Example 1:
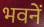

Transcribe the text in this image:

भवनें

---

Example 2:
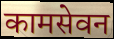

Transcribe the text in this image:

कामसेवन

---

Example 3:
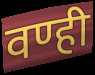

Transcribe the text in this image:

वण्ही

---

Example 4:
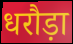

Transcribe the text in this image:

धरौड़ा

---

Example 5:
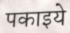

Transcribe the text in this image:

पकाइये